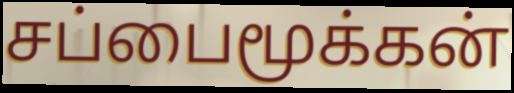
சப்பைமூக்கன்